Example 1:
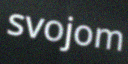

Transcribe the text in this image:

svojom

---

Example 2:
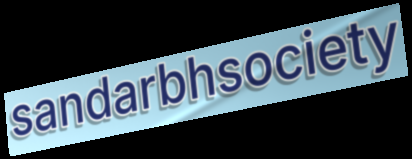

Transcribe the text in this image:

sandarbhsociety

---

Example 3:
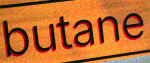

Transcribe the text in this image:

butane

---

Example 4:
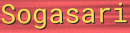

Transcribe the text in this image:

Sogasari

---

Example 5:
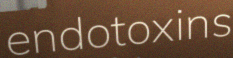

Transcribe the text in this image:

endotoxins